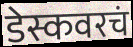
डेस्कवरचं